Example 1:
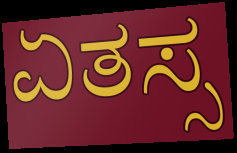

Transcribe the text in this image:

ಏತಸ್ಸ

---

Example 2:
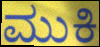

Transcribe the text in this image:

ಮುಕಿ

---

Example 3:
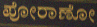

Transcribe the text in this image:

ಪೋರಾಣೋ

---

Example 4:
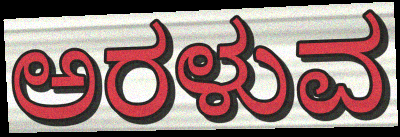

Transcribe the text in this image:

ಅರಳುವ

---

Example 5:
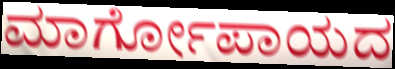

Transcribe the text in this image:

ಮಾರ್ಗೋಪಾಯದ